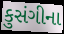
કુસંગીના